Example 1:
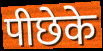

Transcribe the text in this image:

पीछेके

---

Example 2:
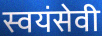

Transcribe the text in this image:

स्वयंसेवी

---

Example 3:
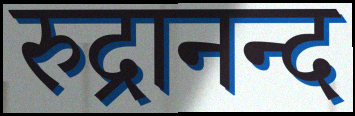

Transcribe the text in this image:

रुद्रानन्द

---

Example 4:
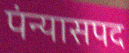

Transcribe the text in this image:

पंन्यासपद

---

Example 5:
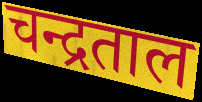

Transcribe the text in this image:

चन्द्रताल